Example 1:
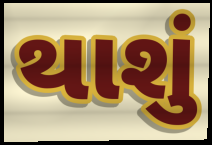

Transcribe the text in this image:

થાશું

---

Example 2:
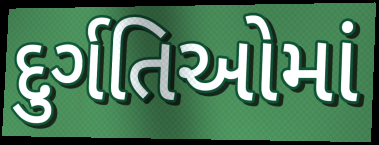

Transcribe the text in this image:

દુર્ગતિઓમાં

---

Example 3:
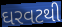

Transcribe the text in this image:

ઘરવટથી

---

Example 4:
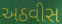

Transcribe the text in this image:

અઠવીસ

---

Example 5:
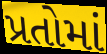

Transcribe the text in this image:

પ્રતોમાં